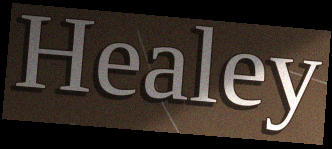
Healey